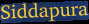
Siddapura